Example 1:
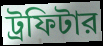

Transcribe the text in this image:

ট্রফিটার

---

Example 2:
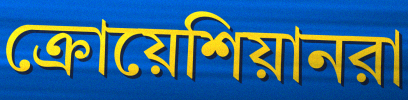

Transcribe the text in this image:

ক্রোয়েশিয়ানরা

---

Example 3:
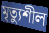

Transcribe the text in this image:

মৃত্যুশীল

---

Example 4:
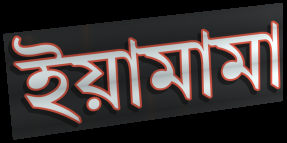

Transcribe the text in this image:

ইয়ামামা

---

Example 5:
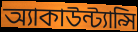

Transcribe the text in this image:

অ্যাকাউন্ট্যান্সি